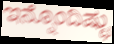
ಇನ್ನೊಂದಿಷ್ಟು